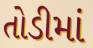
તોડીમાં